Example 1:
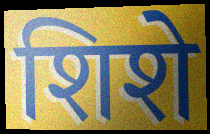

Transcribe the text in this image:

शिशे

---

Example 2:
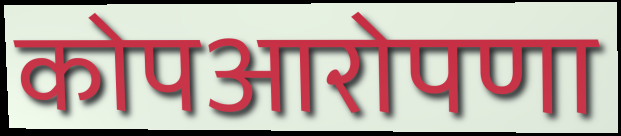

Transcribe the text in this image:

कोपआरोपणा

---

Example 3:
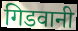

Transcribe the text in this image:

गिडवानी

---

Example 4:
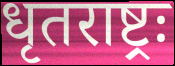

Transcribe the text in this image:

धृतराष्ट्रः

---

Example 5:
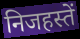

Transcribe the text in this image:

निजहस्तें